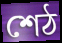
শেঠ